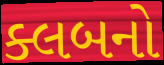
ક્લબનો